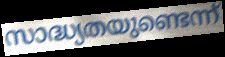
സാദ്ധ്യതയുണ്ടെന്ന്